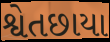
શ્વેતછાયા